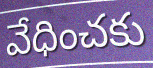
వేధించకు